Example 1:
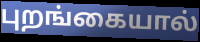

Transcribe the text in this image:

புறங்கையால்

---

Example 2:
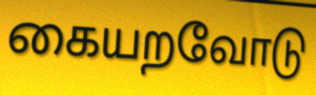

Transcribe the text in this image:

கையறவோடு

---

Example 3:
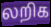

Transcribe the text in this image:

லறிக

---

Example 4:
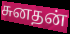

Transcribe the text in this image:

சுனதன்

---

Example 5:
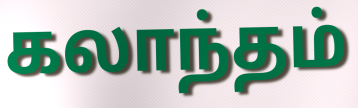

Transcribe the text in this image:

கலாந்தம்